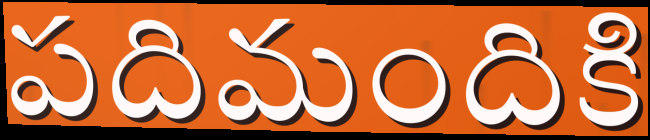
పదిమందికి